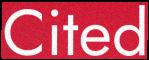
Cited